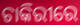
ଚାକିରୀରେ